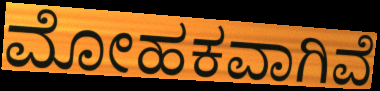
ಮೋಹಕವಾಗಿವೆ